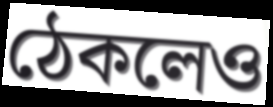
ঠেকলেও